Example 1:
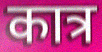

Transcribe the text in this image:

कात्र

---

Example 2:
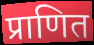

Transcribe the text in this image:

प्राणित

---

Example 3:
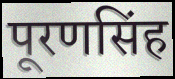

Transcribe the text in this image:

पूरणसिंह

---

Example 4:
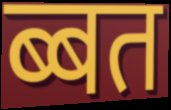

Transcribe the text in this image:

ब्बत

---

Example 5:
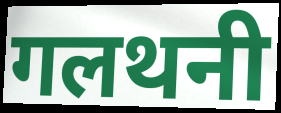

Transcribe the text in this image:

गलथनी